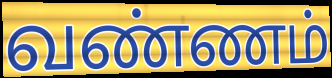
வண்ணம்